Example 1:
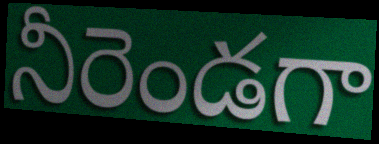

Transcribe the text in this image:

నీరెండగా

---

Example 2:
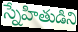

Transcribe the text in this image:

స్నేహితుడిని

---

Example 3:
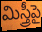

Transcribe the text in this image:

మిస్త్రీపై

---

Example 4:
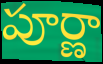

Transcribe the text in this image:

పూర్ణా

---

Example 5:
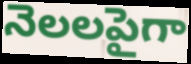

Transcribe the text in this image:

నెలలపైగా